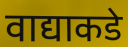
वाद्याकडे